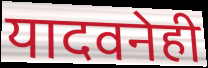
यादवनेही